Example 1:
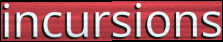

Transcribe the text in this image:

incursions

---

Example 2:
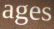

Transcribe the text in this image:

ages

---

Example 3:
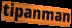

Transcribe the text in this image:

tipanman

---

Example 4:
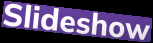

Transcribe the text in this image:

Slideshow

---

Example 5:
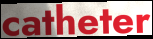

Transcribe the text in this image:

catheter